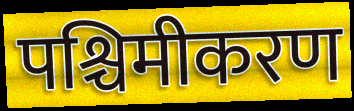
पश्चिमीकरण